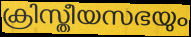
ക്രിസ്തീയസഭയും